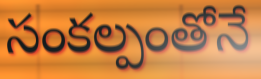
సంకల్పంతోనే